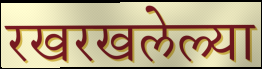
रखरखलेल्या